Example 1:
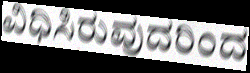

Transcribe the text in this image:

ವಿಧಿಸಿರುವುದರಿಂದ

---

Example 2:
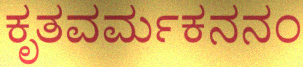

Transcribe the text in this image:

ಕೃತವರ್ಮಕನನಂ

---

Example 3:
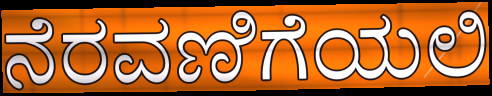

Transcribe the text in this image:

ನೆರವಣಿಗೆಯಲಿ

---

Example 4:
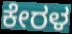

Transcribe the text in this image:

ಕೇರಳ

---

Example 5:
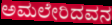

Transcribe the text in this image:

ಅಮಲೇರಿದವನ